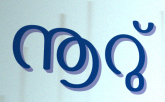
നൂറു്